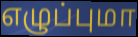
எழுப்புமா